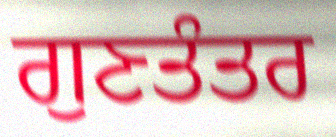
ਗੁਣਤੰਤਰ